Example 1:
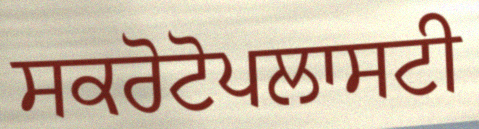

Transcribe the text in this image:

ਸਕਰੋਟੋਪਲਾਸਟੀ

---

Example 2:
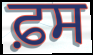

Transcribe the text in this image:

ਫ਼ਸ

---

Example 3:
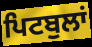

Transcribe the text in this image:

ਪਿਟਬੁਲਾਂ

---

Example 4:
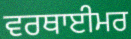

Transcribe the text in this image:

ਵਰਥਾਈਮਰ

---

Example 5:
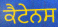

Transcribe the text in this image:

ਕੈਟੇਨਸ